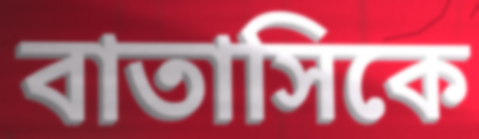
বাতাসিকে